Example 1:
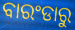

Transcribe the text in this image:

ବାରଂଡାରୁ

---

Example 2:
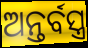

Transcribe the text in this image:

ଅନ୍ତର୍ବସ୍ତ୍ର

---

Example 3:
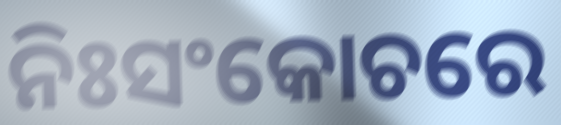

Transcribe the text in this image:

ନିଃସଂକୋଚରେ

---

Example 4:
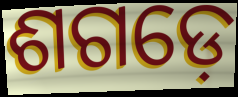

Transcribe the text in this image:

ଶଗଡ଼େ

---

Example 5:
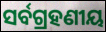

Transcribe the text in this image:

ସର୍ବଗ୍ରହଣୀୟ